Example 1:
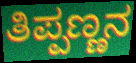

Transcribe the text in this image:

ತಿಪ್ಪಣ್ಣನ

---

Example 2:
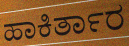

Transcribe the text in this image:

ಹಾಕಿರ್ತಾರ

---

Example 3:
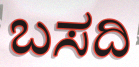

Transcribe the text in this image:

ಬಸದಿ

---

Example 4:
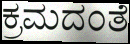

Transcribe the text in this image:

ಕ್ರಮದಂತೆ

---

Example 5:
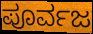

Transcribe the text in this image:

ಪೂರ್ವಜ